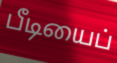
பீடியைப்